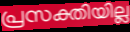
പ്രസക്തിയില്ല